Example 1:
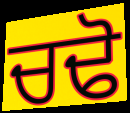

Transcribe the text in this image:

ਚਢੋ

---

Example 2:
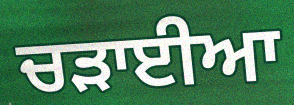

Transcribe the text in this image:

ਚੜਾਈਆ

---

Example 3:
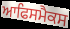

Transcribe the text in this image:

ਆਫਿਸਮੈਕਸ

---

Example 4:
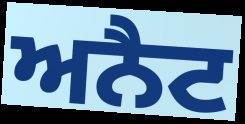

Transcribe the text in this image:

ਅਨੈਟ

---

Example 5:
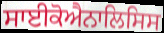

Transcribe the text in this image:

ਸਾਈਕੋਐਨਾਲਿਸਿਸ